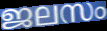
ജലസം